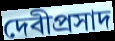
দেবীপ্রসাদ